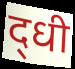
द्धी